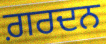
ਗ਼ਰਦਨ